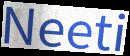
Neeti